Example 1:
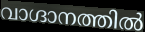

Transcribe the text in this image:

വാഗ്ദാനത്തിൽ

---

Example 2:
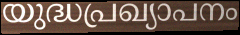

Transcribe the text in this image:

യുദ്ധപ്രഖ്യാപനം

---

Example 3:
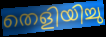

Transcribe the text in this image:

തെളിയിച്ചു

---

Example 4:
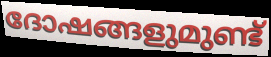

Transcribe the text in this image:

ദോഷങ്ങളുമുണ്ട്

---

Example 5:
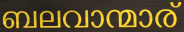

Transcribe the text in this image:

ബലവാന്മാര്